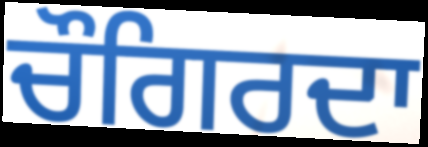
ਚੌਗਿਰਦਾ